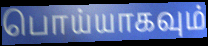
பொய்யாகவும்